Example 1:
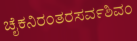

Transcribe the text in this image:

ಚೈಕನಿರಂತರಸರ್ವಶಿವಂ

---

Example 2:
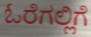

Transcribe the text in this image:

ಓರೆಗಲ್ಲಿಗೆ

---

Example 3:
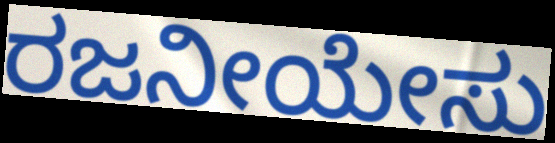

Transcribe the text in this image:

ರಜನೀಯೇಸು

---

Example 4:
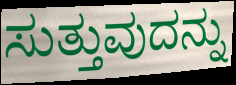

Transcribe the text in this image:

ಸುತ್ತುವುದನ್ನು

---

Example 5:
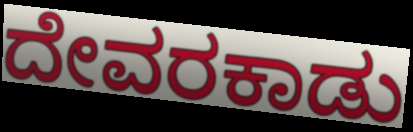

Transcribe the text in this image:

ದೇವರಕಾಡು